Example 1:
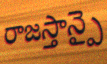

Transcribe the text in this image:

రాజస్తాన్పై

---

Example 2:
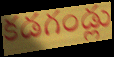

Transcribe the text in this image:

కడగండ్లు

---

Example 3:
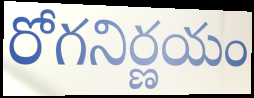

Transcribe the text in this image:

రోగనిర్ణయం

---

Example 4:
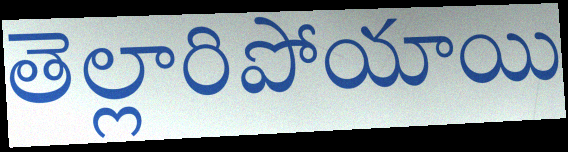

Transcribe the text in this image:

తెల్లారిపోయాయి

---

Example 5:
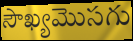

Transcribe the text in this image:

సౌఖ్యమొసగు